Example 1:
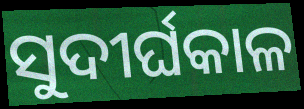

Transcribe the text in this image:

ସୁଦୀର୍ଘକାଳ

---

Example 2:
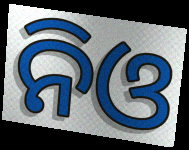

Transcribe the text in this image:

ନିଓ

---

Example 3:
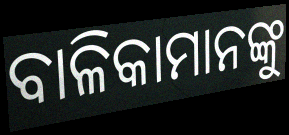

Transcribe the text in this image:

ବାଳିକାମାନଙ୍କୁ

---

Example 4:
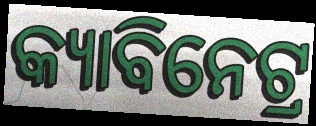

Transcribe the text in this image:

କ୍ୟାବିନେଟ୍ର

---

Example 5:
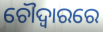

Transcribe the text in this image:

ଚୌଦ୍ୱାରରେ